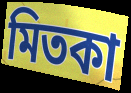
মিতকা